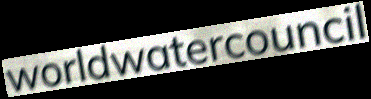
worldwatercouncil